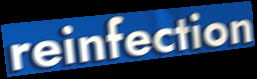
reinfection